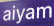
aiyam